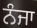
ਨੰਜਾ